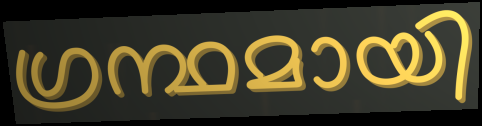
ഗ്രന്ഥമായി